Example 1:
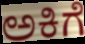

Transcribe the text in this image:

ಅಕಿಗೆ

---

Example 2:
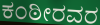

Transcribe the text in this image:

ಕಂಠೀರವರ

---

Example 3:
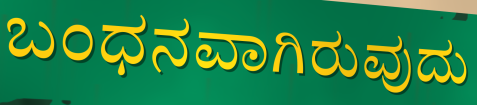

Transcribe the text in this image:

ಬಂಧನವಾಗಿರುವುದು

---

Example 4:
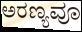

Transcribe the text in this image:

ಅರಣ್ಯವೂ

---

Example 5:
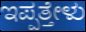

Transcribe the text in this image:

ಇಪ್ಪತ್ತೇಳು